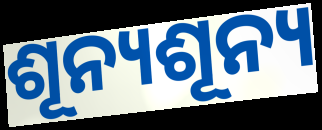
ଶୂନ୍ୟଶୂନ୍ୟ